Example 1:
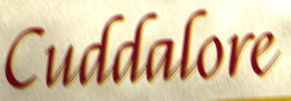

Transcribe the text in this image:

Cuddalore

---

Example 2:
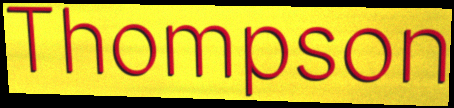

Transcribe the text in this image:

Thompson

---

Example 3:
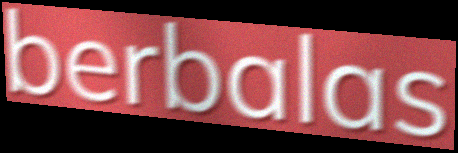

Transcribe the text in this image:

berbalas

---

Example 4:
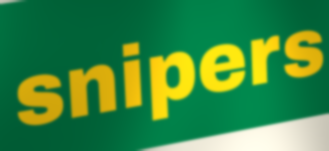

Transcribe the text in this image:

snipers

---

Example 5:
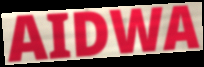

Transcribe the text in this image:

AIDWA